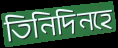
তিনিদিনহে